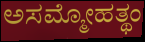
ಅಸಮ್ಮೋಹತ್ಥಂ